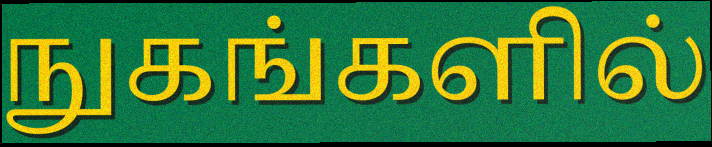
நுகங்களில்